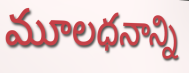
మూలధనాన్ని